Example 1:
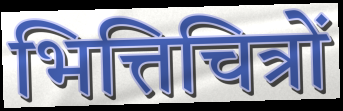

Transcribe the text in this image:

भित्तिचित्रों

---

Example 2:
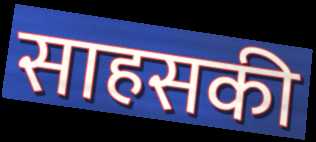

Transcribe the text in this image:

साहसकी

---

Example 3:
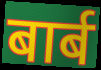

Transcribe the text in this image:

बार्ब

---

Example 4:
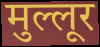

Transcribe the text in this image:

मुल्लूर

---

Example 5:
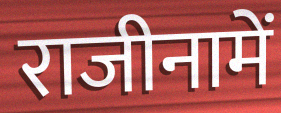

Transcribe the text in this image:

राजीनामें